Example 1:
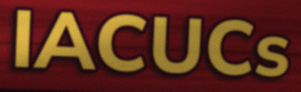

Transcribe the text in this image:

IACUCs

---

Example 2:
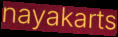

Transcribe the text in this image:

nayakarts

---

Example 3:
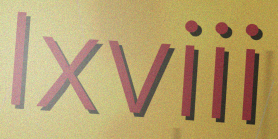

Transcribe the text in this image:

Ixviii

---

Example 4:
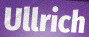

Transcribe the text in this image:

Ullrich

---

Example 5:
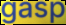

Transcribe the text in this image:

gasp